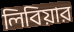
লিবিয়ার